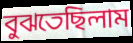
বুঝতেছিলাম